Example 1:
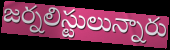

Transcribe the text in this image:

జర్నలిస్టులున్నారు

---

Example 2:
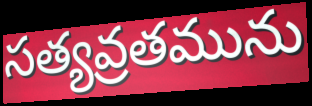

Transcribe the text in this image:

సత్యవ్రతమును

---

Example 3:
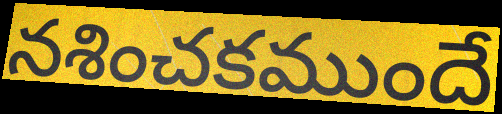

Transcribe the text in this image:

నశించకముందే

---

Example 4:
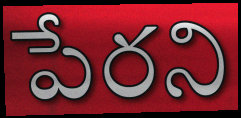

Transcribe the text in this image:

పేరని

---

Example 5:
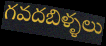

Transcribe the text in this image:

గవదబిళ్ళలు